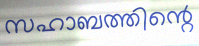
സഹാബത്തിന്റെ